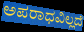
ಅಪರಾಧವಿಲ್ಲದೆ